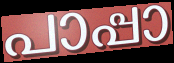
പാപ്പാ